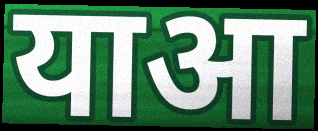
याआ